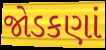
જોડકણાં